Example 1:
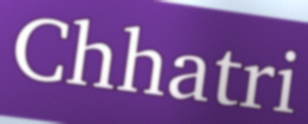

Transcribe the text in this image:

Chhatri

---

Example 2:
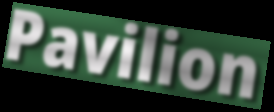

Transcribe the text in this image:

Pavilion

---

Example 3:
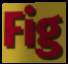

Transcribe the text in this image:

Fig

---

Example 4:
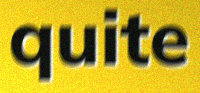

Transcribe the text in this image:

quite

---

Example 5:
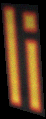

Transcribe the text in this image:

li